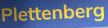
Plettenberg